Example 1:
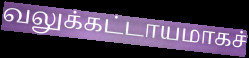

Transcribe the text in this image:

வலுக்கட்டாயமாகச்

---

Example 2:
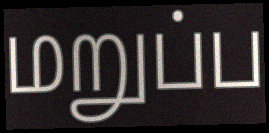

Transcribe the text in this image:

மறுப்ப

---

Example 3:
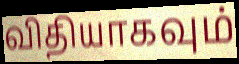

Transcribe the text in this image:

விதியாகவும்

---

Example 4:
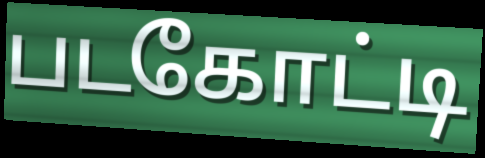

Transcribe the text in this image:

படகோட்டி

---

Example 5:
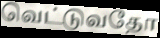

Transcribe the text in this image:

வெட்டுவதோ